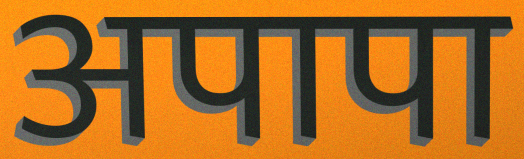
अपापा